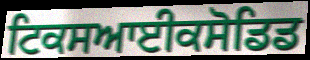
ਟਿਕਸਆਈਕਸੋਡਿਡ